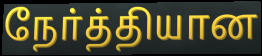
நேர்த்தியான